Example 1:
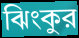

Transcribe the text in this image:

ঝিংকুর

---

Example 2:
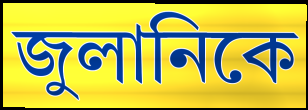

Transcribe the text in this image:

জুলানিকে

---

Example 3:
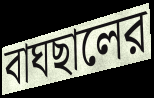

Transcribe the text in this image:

বাঘছালের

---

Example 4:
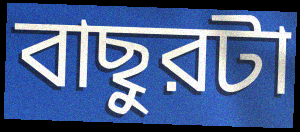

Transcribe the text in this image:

বাছুরটা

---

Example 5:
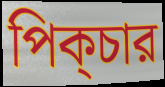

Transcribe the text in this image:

পিক্চার